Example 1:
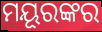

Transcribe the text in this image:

ମୟୂରଙ୍କର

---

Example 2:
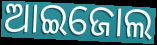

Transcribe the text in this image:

ଆଇଜୋଲ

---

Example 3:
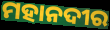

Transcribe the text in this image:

ମହାନଦୀର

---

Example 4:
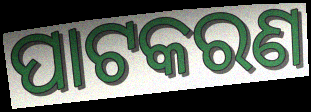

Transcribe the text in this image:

ପାଟକରଣ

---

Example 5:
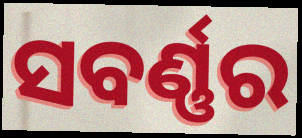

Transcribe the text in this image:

ସବର୍ଣ୍ଣର